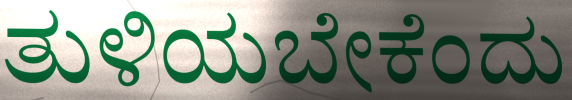
ತುಳಿಯಬೇಕೆಂದು